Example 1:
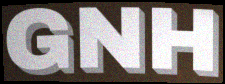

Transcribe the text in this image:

GNH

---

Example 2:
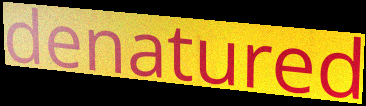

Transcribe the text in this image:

denatured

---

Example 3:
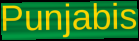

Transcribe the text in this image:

Punjabis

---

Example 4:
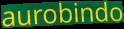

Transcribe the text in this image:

aurobindo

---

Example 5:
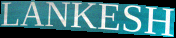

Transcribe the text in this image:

LANKESH